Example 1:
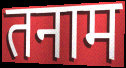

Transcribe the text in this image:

तनाम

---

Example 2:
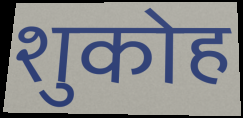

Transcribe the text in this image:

शुकोह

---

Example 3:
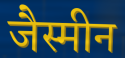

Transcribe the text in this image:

जैस्मीन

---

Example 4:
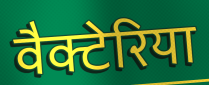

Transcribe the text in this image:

वैक्टेरिया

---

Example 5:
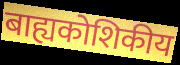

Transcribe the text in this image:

बाह्यकोशिकीय